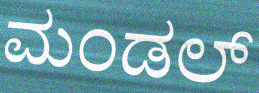
ಮಂಡಲ್